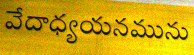
వేదాధ్యయనమును